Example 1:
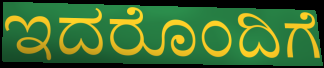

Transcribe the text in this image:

ಇದರೊಂದಿಗೆ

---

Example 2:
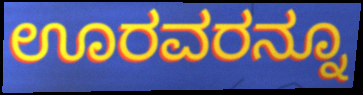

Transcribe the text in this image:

ಊರವರನ್ನೂ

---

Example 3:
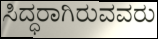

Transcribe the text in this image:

ಸಿದ್ಧರಾಗಿರುವವರು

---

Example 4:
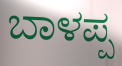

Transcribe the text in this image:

ಬಾಳಪ್ಪ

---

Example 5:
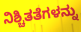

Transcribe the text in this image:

ನಿಶ್ಚಿತತೆಗಳನ್ನು